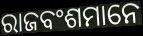
ରାଜବଂଶମାନେ